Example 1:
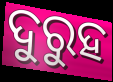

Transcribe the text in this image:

ଦୁରୁହ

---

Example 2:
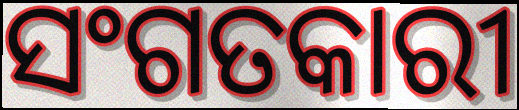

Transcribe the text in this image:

ସଂଗତକାରୀ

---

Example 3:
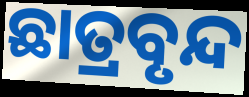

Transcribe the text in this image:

ଛାତ୍ରବୃନ୍ଦ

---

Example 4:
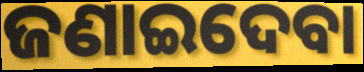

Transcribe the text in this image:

ଜଣାଇଦେବା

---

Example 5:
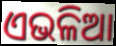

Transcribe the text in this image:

ଏଭଳିଆ